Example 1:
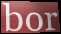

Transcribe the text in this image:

bor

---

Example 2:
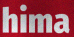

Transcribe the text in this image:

hima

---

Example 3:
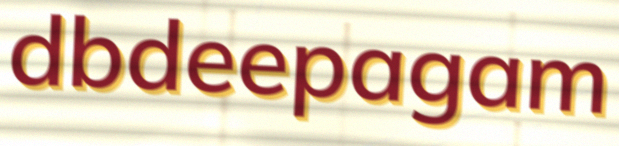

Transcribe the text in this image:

dbdeepagam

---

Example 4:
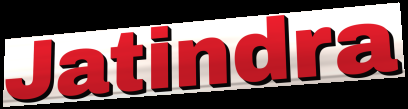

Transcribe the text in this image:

Jatindra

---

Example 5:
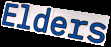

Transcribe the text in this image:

Elders